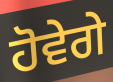
ਹੋਵੇਗੇ